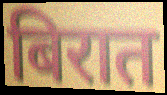
बिरात